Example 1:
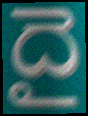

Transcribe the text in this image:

దై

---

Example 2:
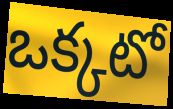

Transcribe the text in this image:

ఒక్కటో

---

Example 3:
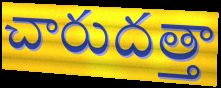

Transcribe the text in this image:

చారుదత్తా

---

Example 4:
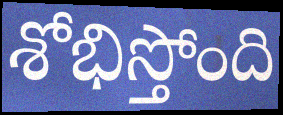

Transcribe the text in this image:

శోభిస్తోంది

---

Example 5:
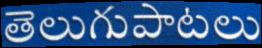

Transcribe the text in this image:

తెలుగుపాటలు